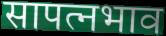
सापत्नभाव